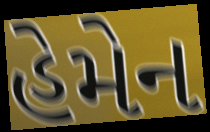
હેમેન